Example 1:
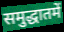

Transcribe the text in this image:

समुद्धातमें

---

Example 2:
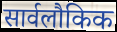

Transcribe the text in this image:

सार्वलौकिक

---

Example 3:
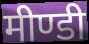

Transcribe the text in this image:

मीण्‍डी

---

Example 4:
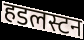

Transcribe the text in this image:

हडलस्टन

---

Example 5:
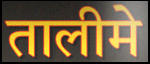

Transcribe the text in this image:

तालीमे